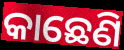
କାଛେଣି